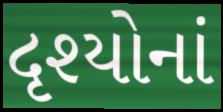
દૃશ્યોનાં